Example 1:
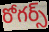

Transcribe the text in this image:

రోగర్స్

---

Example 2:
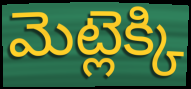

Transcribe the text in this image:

మెట్లెక్కి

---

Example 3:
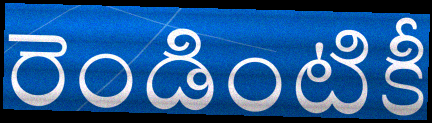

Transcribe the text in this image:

రెండింటికీ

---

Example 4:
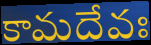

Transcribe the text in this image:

కామదేవః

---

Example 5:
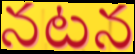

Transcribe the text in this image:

నటన